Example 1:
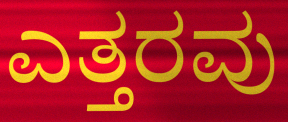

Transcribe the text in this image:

ಎತ್ತರವು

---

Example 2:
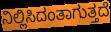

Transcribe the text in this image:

ನಿಲ್ಲಿಸಿದಂತಾಗುತ್ತದೆ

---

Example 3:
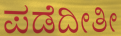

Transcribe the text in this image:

ಪಡೆದೀತೀ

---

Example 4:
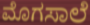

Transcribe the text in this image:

ಮೊಗಸಾಲೆ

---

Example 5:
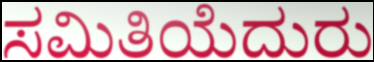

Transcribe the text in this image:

ಸಮಿತಿಯೆದುರು